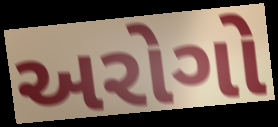
અરોગો